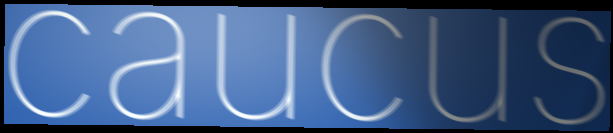
caucus